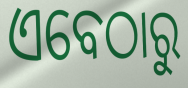
ଏବେଠାରୁ